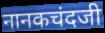
नानकचंदजी